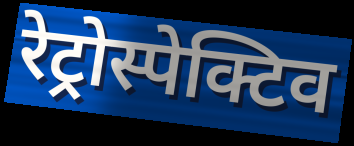
रेट्रोस्पेक्टिव